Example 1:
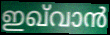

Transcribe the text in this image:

ഇഖ്‌വാൻ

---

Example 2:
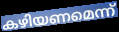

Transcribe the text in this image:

കഴിയണമെന്ന്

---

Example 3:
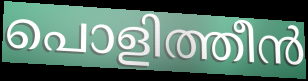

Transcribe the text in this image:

പൊളിത്തീൻ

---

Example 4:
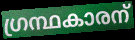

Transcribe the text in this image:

ഗ്രന്ഥകാരന്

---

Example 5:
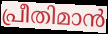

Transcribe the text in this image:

പ്രീതിമാൻ